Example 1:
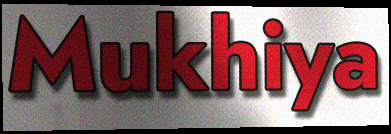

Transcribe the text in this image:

Mukhiya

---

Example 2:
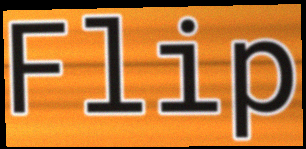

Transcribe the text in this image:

Flip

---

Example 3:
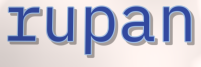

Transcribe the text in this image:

rupan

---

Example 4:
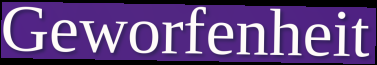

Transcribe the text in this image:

Geworfenheit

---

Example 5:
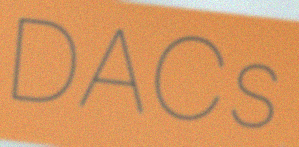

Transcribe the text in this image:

DACs